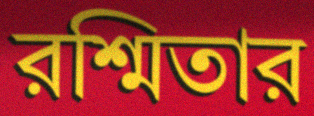
রশ্মিতার